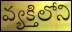
వ్యక్తిలోని